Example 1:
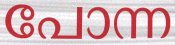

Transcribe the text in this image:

പോന്ന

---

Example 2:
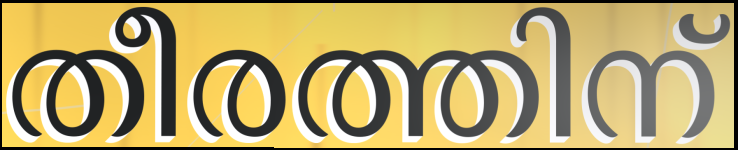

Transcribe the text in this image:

തീരത്തിന്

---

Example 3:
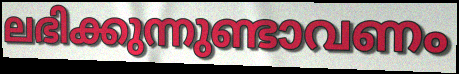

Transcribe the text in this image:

ലഭിക്കുന്നുണ്ടാവണം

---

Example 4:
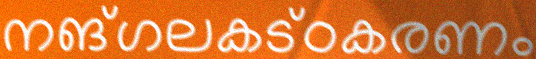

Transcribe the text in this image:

നങ്ഗലകട്ഠകരണം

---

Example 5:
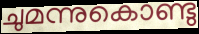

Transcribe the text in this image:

ചുമന്നുകൊണ്ടു